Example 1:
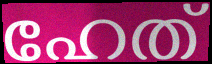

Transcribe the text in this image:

ഹേത്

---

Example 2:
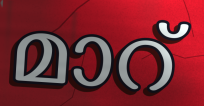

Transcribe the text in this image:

മാറ്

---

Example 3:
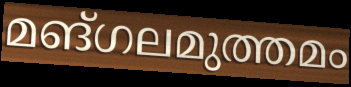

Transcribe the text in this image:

മങ്ഗലമുത്തമം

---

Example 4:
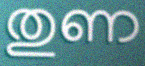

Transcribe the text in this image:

തുണ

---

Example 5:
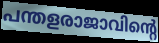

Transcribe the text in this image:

പന്തളരാജാവിന്റെ